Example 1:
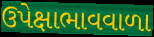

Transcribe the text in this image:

ઉપેક્ષાભાવવાળા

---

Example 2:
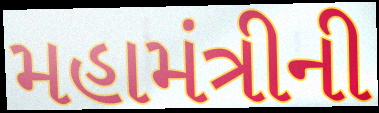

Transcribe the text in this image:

મહામંત્રીની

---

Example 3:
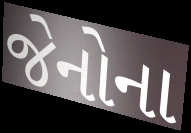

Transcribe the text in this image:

જેનોના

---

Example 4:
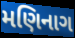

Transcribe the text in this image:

મણિનાગ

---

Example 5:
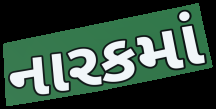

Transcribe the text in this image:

નારકમાં